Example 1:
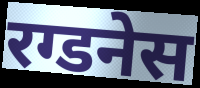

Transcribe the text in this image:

रग्डनेस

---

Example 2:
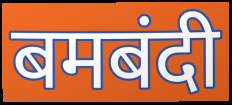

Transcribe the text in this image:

बमबंदी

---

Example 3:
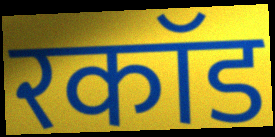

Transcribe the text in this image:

रकॉड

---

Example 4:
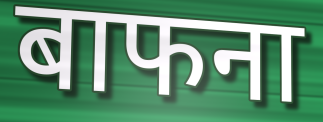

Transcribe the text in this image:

बाफना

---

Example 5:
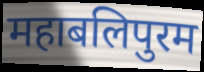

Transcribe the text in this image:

महाबलिपुरम